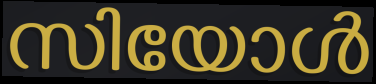
സിയോൾ